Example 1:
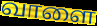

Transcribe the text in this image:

வாளை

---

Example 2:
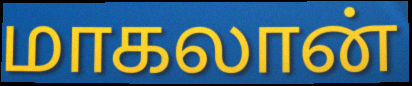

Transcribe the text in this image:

மாகலான்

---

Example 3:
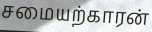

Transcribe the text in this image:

சமையற்காரன்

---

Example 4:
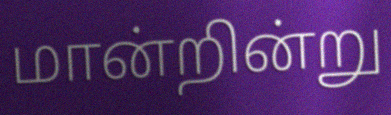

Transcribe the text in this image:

மான்றின்று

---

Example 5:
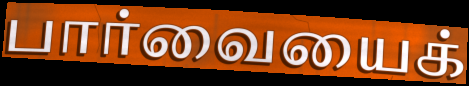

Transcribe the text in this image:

பார்வையைக்